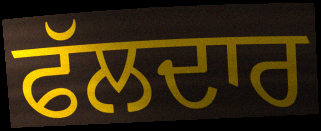
ਫੱਲਦਾਰ